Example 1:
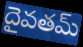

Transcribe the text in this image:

దైవతమ్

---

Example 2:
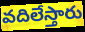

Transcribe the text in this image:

వదిలేస్తారు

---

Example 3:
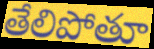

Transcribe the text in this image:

తేలిపోతూ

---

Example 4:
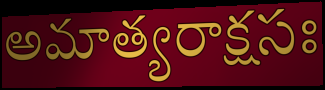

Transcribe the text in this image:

అమాత్యరాక్షసః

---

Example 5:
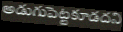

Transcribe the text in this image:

అడుగుపెట్టకూడదని